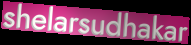
shelarsudhakar